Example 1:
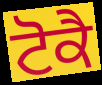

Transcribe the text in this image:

ਟੋਕੈ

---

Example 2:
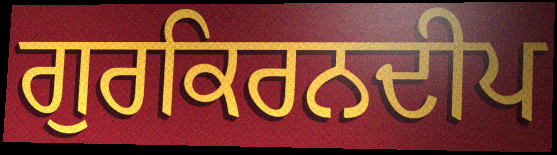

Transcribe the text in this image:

ਗੁਰਕਿਰਨਦੀਪ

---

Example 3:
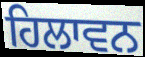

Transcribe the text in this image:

ਹਿਲਾਵਨ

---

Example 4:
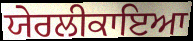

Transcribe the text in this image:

ਯੇਰਲੀਕਾਇਆ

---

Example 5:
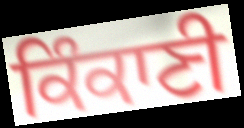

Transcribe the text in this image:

ਕਿੰਕਾਣੀ